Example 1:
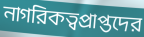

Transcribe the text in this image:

নাগরিকত্বপ্রাপ্তদের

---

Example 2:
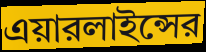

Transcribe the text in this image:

এয়ারলাইন্সের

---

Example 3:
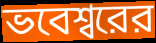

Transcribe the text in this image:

ভবেশ্বরের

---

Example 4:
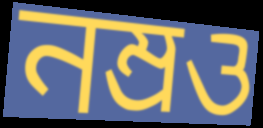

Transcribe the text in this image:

নম্রও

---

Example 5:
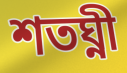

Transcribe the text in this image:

শতঘ্নী